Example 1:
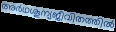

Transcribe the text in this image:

അർഥശൂന്യജീവിതത്തിൽ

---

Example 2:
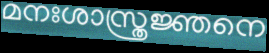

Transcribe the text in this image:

മനഃശാസ്ത്രജ്ഞനെ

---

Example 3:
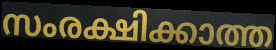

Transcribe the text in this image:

സംരക്ഷിക്കാത്ത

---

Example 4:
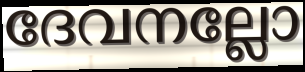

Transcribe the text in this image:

ദേവനല്ലോ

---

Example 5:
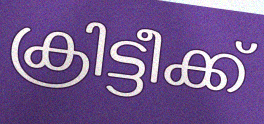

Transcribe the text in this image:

ക്രിട്ടീക്ക്